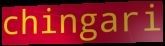
chingari